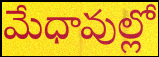
మేధావుల్లో